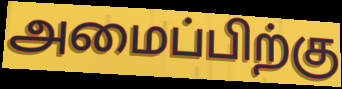
அமைப்பிற்கு